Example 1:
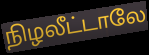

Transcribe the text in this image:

நிழலீட்டாலே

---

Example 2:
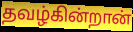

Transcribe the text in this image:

தவழ்கின்றான்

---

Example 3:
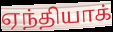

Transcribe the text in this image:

ஏந்தியாக்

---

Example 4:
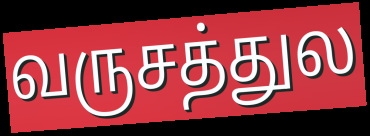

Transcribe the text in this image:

வருசத்துல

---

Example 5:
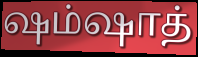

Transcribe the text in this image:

ஷம்ஷாத்